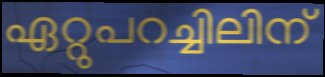
ഏറ്റുപറച്ചിലിന്